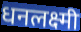
धनलक्ष्मी